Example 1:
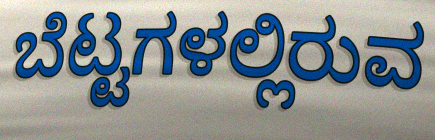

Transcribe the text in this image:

ಬೆಟ್ಟಗಳಲ್ಲಿರುವ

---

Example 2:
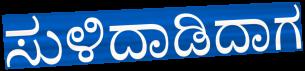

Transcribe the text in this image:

ಸುಳಿದಾಡಿದಾಗ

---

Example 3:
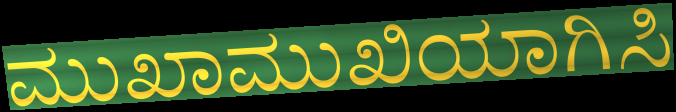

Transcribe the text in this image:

ಮುಖಾಮುಖಿಯಾಗಿಸಿ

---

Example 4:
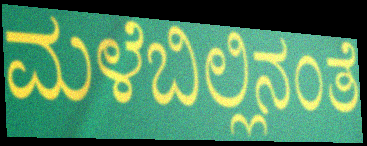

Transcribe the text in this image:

ಮಳೆಬಿಲ್ಲಿನಂತೆ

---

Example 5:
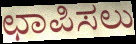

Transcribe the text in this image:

ಛಾಪಿಸಲು